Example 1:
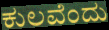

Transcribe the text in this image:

ಕುಲವೆಂದು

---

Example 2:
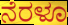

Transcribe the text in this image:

ನೆರಳೂ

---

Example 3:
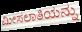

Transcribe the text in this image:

ಮೀಸಲಾತಿಯನ್ನು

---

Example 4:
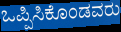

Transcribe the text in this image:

ಒಪ್ಪಿಸಿಕೊಂಡವರು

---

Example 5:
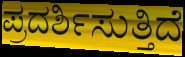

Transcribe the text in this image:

ಪ್ರದರ್ಶಿಸುತ್ತಿದೆ